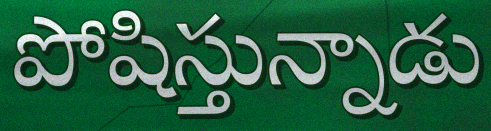
పోషిస్తున్నాడు